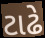
ટાઢે